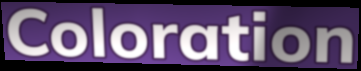
Coloration